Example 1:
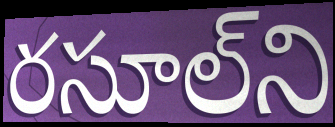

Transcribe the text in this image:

రసూల్‌ని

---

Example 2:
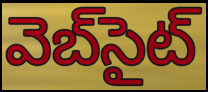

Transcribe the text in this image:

వెబ్‌సైట్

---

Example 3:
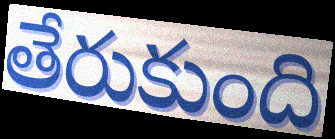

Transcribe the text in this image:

తేరుకుంది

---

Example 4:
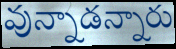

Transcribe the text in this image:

వున్నాడన్నారు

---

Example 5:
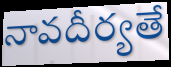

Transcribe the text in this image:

నావదీర్యతే